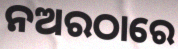
ନଅରଠାରେ